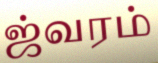
ஜ்வரம்